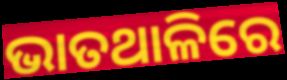
ଭାତଥାଳିରେ